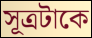
সূত্রটাকে